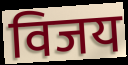
विजय